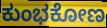
ಕುಂಭಕೋಣ